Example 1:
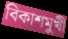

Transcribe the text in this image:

বিকাশমুখী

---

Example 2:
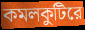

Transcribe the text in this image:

কমলকুটিরে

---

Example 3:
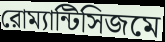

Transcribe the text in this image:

রোম্যান্টিসিজমে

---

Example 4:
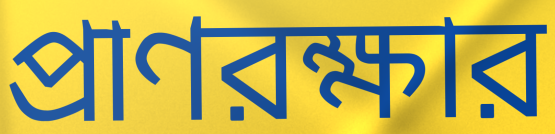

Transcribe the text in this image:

প্রাণরক্ষার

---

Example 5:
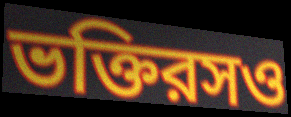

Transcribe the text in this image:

ভক্তিরসও